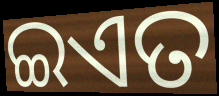
ଇଏତ